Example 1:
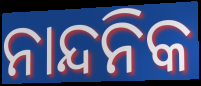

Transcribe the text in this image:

ନାନ୍ଦନିକ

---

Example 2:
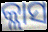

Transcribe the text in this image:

କ୍ଲାସ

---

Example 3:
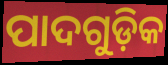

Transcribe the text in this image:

ପାଦଗୁଡ଼ିକ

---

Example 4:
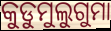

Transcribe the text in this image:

କୁଡୁମୁଲୁଗୁମା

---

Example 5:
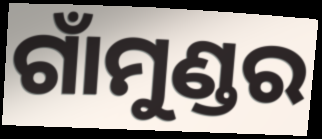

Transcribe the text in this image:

ଗାଁମୁଣ୍ଡର